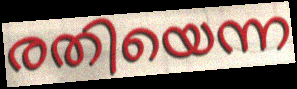
രതിയെന്ന